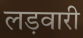
लड़वारी